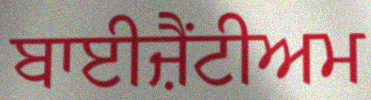
ਬਾਈਜ਼ੈਂਟੀਅਮ